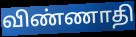
விண்ணாதி